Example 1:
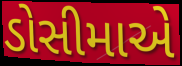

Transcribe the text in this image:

ડોસીમાએ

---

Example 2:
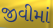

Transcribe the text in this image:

જીવીમાં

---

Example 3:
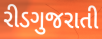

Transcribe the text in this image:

રીડગુજરાતી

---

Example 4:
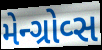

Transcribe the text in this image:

મેન્ગ્રોવ્સ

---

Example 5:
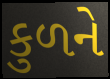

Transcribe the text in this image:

કુળને